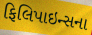
ફિલિપાઇન્સના